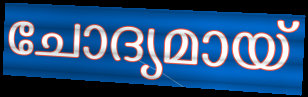
ചോദ്യമായ്